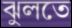
ঝুলতে